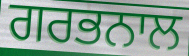
ਗਰਭਨਾਲ